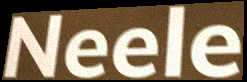
Neele